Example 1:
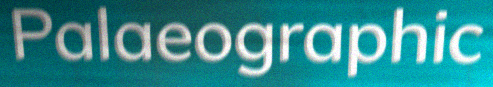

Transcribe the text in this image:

Palaeographic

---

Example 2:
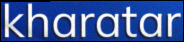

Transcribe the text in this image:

kharatar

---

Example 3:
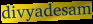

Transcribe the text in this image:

divyadesam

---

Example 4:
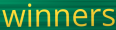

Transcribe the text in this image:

winners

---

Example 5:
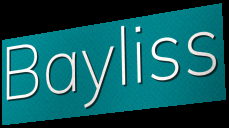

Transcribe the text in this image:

Bayliss